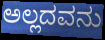
ಅಲ್ಲದವನು